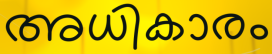
അധികാരം